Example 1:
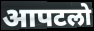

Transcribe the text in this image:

आपटलो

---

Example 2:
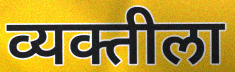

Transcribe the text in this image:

व्यक्तीला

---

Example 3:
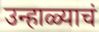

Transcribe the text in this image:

उन्हाळ्याचं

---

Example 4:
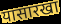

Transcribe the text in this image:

यासारखा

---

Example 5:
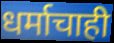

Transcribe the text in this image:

धर्माचाही